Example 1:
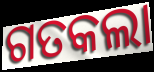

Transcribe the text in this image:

ଗତକଲା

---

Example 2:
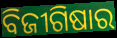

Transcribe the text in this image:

ବିଜୀଗିଷାର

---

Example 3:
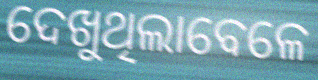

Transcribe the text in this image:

ଦେଖୁଥିଲାବେଳେ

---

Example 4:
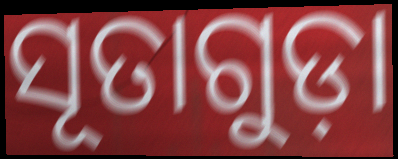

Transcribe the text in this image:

ସୂତାଗୁଡ଼ା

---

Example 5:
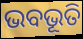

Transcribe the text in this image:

ଭବଭୂତି